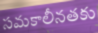
సమకాలీనతకు